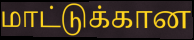
மாட்டுக்கான